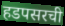
हडपसरची